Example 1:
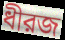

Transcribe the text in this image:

ধীরজ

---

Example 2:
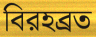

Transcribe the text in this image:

বিরহব্রত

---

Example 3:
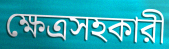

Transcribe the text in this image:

ক্ষেত্রসহকারী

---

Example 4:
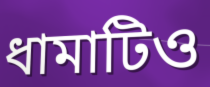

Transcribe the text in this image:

ধামাটিও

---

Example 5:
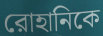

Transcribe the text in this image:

রোহানিকে